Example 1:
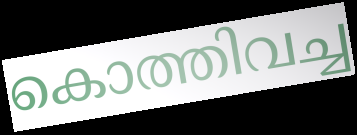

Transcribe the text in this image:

കൊത്തിവച്ച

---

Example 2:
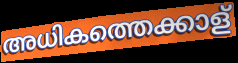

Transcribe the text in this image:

അധികത്തെക്കാള്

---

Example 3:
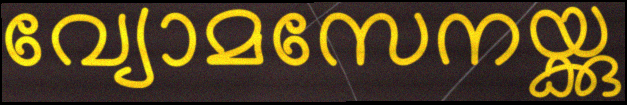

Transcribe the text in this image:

വ്യോമസേനയ്ക്കു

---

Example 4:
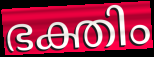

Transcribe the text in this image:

ഭക്തിം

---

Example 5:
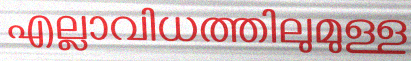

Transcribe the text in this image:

എല്ലാവിധത്തിലുമുള്ള